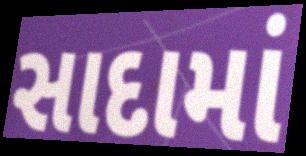
સાદામાં